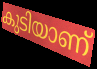
കുടിയാണ്